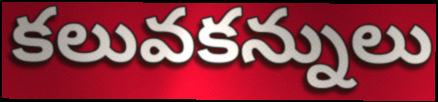
కలువకన్నులు